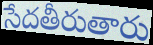
సేదతీరుతారు